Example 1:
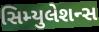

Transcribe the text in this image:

સિમ્યુલેશન્સ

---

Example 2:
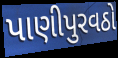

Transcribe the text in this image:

પાણીપુરવઠો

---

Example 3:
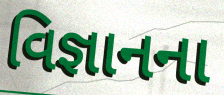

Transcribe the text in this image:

વિજ્ઞાનના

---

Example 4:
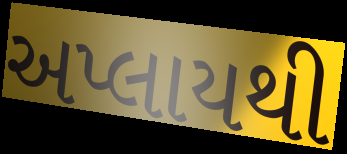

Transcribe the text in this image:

અપ્લાયથી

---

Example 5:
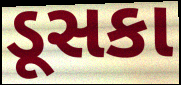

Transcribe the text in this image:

ડૂસકા